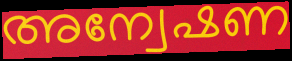
അന്വേഷണ